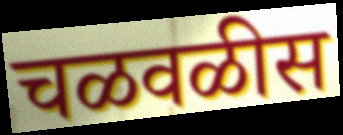
चळवळीस